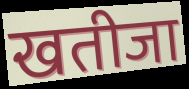
खतीजा